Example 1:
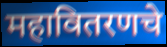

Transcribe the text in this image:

महावितरणचे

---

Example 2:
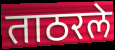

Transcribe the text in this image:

ताठरले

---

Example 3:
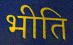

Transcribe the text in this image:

भीति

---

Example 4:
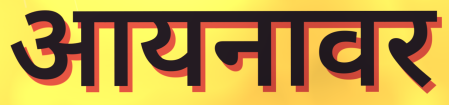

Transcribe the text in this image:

आयनावर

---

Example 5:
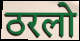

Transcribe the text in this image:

ठरलो